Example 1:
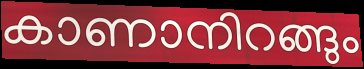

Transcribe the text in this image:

കാണാനിറങ്ങും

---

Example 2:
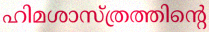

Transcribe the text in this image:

ഹിമശാസ്ത്രത്തിന്റെ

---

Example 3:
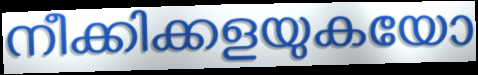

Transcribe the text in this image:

നീക്കിക്കളയുകയോ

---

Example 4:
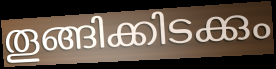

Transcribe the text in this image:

തൂങ്ങിക്കിടക്കും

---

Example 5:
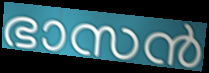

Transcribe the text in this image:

ഭാസൻ